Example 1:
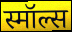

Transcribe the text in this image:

स्मॉल्स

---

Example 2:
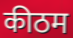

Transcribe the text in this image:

कीठम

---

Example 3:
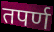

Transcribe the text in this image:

तपर्ण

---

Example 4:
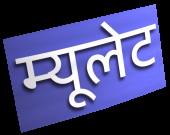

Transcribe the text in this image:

म्यूलेट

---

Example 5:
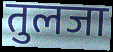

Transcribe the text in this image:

तुलजा